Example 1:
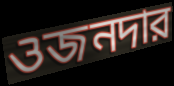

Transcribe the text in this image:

ওজনদার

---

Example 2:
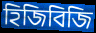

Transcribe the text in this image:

হিজিবিজি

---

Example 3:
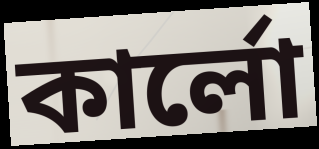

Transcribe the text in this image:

কার্লো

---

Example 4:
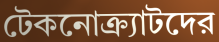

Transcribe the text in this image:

টেকনোক্র্যাটদের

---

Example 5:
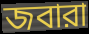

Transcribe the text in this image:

জবারা